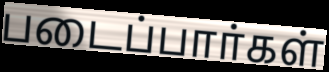
படைப்பார்கள்